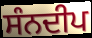
ਸੰਨਦੀਪ